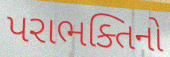
પરાભક્તિનો